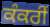
ਕੰਕਰੀਂ